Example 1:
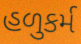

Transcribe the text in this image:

હળુકર્મ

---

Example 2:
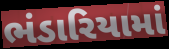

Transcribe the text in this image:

ભંડારિયામાં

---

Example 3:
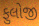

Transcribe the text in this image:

ફુલોજી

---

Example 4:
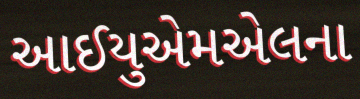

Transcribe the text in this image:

આઈયુએમએલના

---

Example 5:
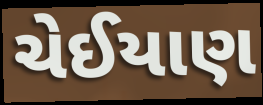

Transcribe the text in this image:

ચેઈયાણ